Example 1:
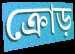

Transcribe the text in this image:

ক্রোড়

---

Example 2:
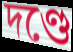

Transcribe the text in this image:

দণ্ডে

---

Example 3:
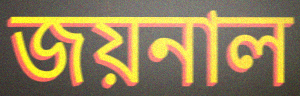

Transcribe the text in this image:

জয়নাল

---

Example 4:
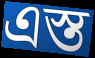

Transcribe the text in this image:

এস্ত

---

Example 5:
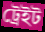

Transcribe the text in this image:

ট্রেইট